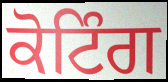
ਕੋਟਿੰਗ